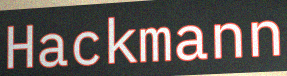
Hackmann